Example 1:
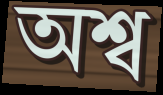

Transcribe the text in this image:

অশ্ব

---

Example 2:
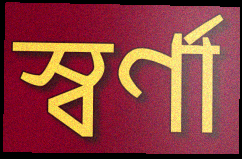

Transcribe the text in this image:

স্বর্ণা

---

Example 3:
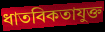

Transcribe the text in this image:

ধাতবিকতাযুক্ত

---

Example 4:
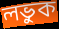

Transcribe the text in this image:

লভুক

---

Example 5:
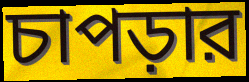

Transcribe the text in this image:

চাপড়ার